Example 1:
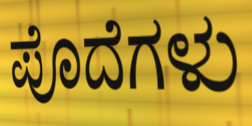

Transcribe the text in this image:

ಪೊದೆಗಳು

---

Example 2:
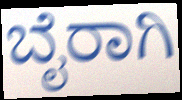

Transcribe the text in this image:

ಬೈರಾಗಿ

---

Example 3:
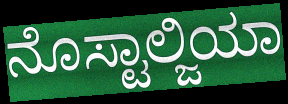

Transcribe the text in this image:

ನೊಸ್ಟಾಲ್ಜಿಯಾ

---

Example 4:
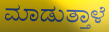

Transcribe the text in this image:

ಮಾಡುತ್ತಾಳೆ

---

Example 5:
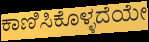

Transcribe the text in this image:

ಕಾಣಿಸಿಕೊಳ್ಳದೆಯೇ